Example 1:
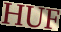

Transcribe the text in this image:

HUF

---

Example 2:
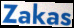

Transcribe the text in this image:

Zakas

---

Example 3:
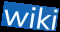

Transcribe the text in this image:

wiki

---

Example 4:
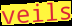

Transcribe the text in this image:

veils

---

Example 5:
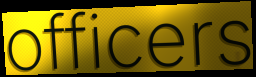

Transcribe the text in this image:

officers